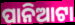
ପାନିଆଟା